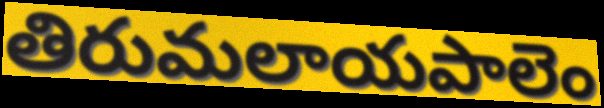
తిరుమలాయపాలెం